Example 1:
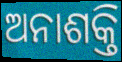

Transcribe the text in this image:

ଅନାଶକ୍ତି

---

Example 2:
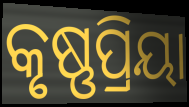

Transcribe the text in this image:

କୃଷ୍ଣପ୍ରିୟା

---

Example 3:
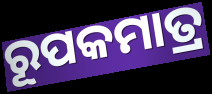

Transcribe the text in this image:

ରୂପକମାତ୍ର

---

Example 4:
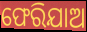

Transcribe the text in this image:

ଫେରିଯାଅ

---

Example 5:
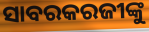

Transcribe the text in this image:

ସାବରକରଜୀଙ୍କୁ